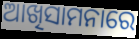
ଆଖିସାମନାରେ